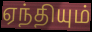
ஏந்தியும்